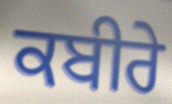
ਕਬੀਰੇ